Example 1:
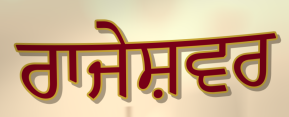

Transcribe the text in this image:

ਰਾਜੇਸ਼ਵਰ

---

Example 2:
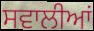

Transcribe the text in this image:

ਸਵਾਲੀਆਂ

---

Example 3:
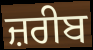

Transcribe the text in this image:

ਜ਼ਰੀਬ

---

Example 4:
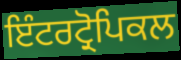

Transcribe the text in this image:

ਇੰਟਰਟ੍ਰੋਪਿਕਲ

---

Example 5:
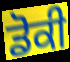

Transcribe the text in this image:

ਡੋਕੀ